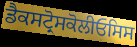
ਡੈਕਸਟ੍ਰੋਸਕੋਲੀਓਸਿਸ